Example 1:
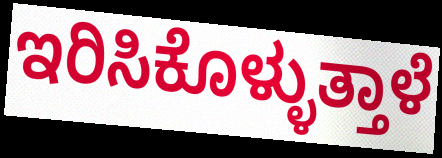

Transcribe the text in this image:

ಇರಿಸಿಕೊಳ್ಳುತ್ತಾಳೆ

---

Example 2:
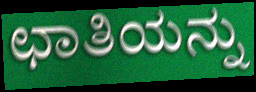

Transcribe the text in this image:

ಛಾತಿಯನ್ನು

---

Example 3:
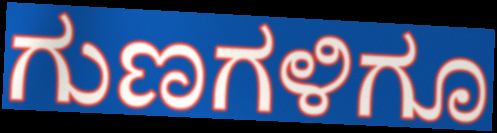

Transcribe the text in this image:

ಗುಣಗಳಿಗೂ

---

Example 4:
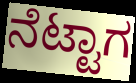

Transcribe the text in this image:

ನೆಟ್ಟಾಗ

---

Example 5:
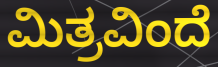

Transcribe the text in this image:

ಮಿತ್ರವಿಂದೆ